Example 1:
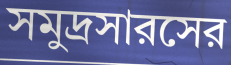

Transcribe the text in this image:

সমুদ্রসারসের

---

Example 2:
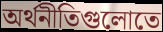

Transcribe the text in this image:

অর্থনীতিগুলোতে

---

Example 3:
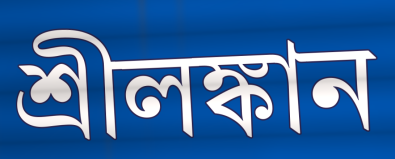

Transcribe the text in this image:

শ্রীলঙ্কান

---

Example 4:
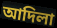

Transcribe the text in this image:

আদিলা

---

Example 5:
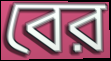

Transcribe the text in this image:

বের